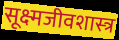
सूक्ष्मजीवशास्त्र